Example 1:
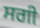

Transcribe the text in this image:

ਸਗੀ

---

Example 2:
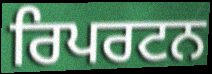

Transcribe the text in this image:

ਰਿਪਰਟਨ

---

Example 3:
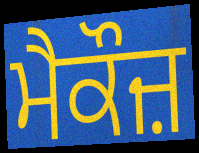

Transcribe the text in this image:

ਮੈਕੌਜ਼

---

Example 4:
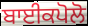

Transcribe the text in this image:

ਬਾਈਕਪੋਲੋ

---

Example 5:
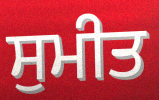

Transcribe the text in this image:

ਸੁਮੀਤ